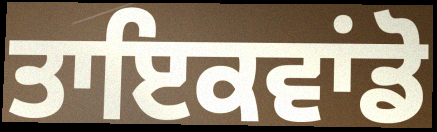
ਤਾਇਕਵਾਂਡੋ